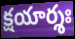
క్షయార్శః